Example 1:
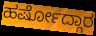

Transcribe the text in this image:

ಹರ್ಷೋದ್ಗಾರ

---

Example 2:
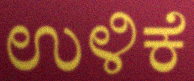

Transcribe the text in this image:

ಉಳಿಕೆ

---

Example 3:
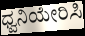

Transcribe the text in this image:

ಧ್ವನಿಯೇರಿಸಿ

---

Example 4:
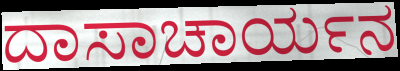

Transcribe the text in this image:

ದಾಸಾಚಾರ್ಯನ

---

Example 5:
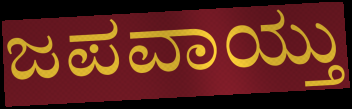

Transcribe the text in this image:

ಜಪವಾಯ್ತು